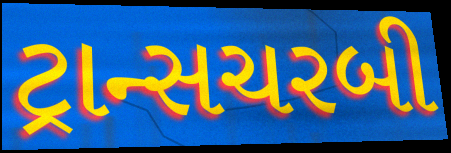
ટ્રાન્સચરબી